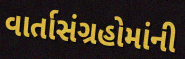
વાર્તાસંગ્રહોમાંની